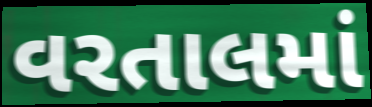
વરતાલમાં